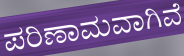
ಪರಿಣಾಮವಾಗಿವೆ